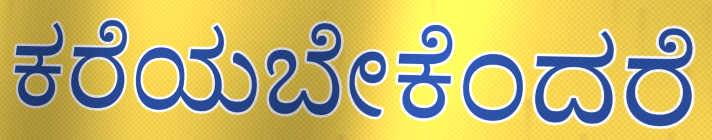
ಕರೆಯಬೇಕೆಂದರೆ